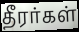
தீரர்கள்